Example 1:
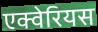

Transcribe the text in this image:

एक्वेरियस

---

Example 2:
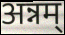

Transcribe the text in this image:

अन्नम्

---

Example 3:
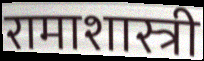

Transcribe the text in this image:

रामाशास्त्री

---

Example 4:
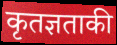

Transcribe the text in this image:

कृतज्ञताकी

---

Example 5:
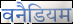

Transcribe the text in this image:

वनैडियम